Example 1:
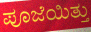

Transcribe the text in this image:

ಪೂಜೆಯಿತ್ತು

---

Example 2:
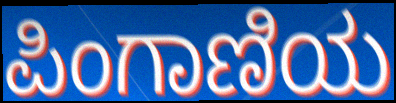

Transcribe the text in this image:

ಪಿಂಗಾಣಿಯ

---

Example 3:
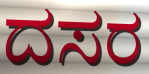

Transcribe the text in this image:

ದಸರ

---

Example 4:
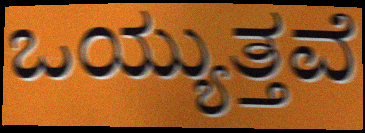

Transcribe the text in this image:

ಒಯ್ಯುತ್ತವೆ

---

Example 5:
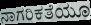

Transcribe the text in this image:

ನಾಗರಿಕತೆಯೂ